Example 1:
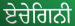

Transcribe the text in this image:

ਏਚੇਗਿਨੀ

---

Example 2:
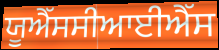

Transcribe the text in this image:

ਯੂਐੱਸਸੀਆਈਐੱਸ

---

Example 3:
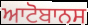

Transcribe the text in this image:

ਆਟੋਬਾਨਸ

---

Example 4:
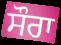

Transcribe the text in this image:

ਸੌਰਾ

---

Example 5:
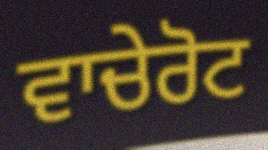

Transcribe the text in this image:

ਵਾਚੇਰੋਟ